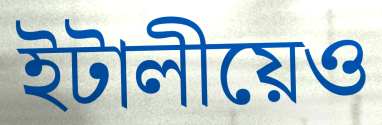
ইটালীয়েও